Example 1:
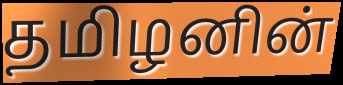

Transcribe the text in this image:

தமிழனின்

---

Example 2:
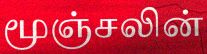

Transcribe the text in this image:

மூஞ்சலின்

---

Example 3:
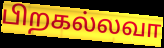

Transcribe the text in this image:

பிறகல்லவா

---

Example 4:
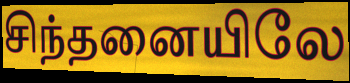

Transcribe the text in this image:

சிந்தனையிலே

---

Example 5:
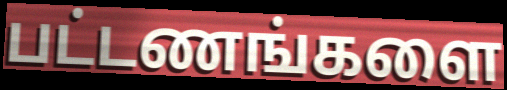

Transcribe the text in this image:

பட்டணங்களை